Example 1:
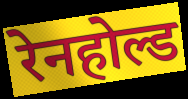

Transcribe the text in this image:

रेनहोल्ड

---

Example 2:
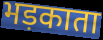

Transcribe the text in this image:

भड़काता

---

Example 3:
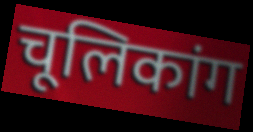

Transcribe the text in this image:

चूलिकांग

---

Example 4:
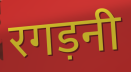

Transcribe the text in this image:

रगड़नी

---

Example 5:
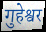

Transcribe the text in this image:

गुहेश्वर